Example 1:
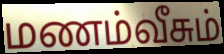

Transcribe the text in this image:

மணம்வீசும்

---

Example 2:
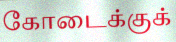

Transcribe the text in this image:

கோடைக்குக்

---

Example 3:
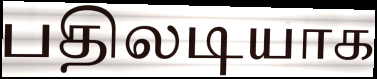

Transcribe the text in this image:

பதிலடியாக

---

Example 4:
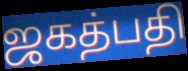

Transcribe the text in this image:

ஜகத்பதி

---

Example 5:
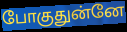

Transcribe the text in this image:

போகுதுன்னே